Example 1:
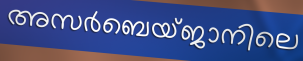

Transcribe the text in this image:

അസർബെയ്ജാനിലെ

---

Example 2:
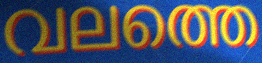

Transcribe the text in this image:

വലത്തെ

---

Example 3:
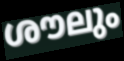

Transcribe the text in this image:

ശൗലും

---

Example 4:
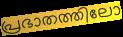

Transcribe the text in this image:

പ്രഭാതത്തിലോ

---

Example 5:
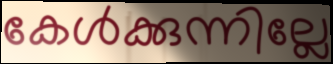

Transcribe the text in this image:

കേൾക്കുന്നില്ലേ